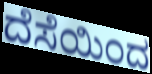
ದೆಸೆಯಿಂದ